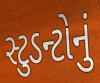
સ્ટુડન્ટોનું